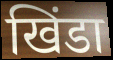
खिंडा